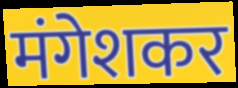
मंगेशकर